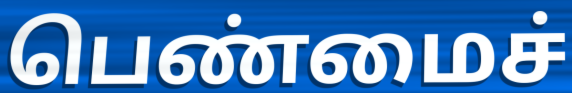
பெண்மைச்